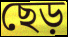
ছেড়